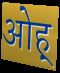
ओह्